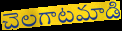
చెలగాటమాడి